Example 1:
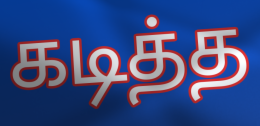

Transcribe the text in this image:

கடித்த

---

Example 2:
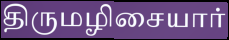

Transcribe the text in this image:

திருமழிசையார்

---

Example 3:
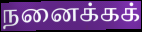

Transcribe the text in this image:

நனைக்கக்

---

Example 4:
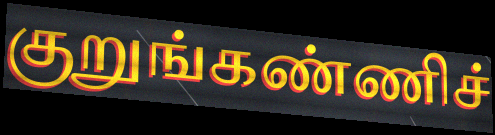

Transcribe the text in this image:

குறுங்கண்ணிச்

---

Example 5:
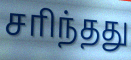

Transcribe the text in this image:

சரிந்தது